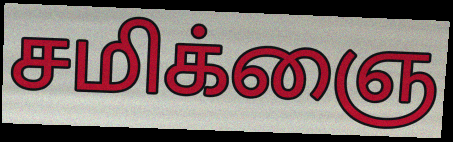
சமிக்ஞை